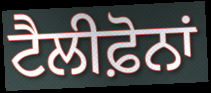
ਟੈਲੀਫ਼ੋਨਾਂ